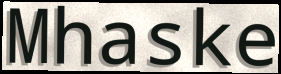
Mhaske